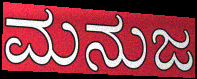
ಮನುಜ